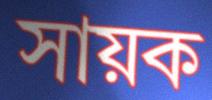
সায়ক